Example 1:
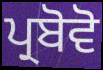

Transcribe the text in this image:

ਪ੍ਰਬੋਵੋ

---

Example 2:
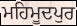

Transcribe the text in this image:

ਮਹਿਮੂਦਪੁਰ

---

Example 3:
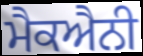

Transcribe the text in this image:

ਮੈਕਐਨੀ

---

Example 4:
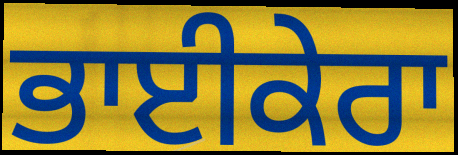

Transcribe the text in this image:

ਭਾਈਕੇਰਾ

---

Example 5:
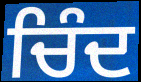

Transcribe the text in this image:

ਚਿੰਦ